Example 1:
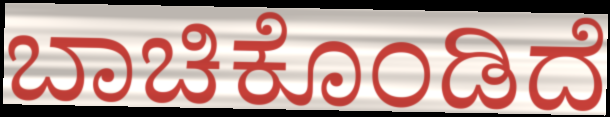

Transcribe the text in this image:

ಬಾಚಿಕೊಂಡಿದೆ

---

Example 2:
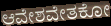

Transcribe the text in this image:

ಆವೇಶವೇತಕೋ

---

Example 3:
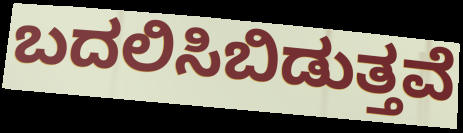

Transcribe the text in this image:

ಬದಲಿಸಿಬಿಡುತ್ತವೆ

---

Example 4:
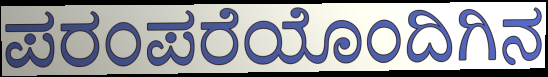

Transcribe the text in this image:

ಪರಂಪರೆಯೊಂದಿಗಿನ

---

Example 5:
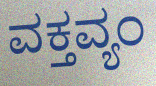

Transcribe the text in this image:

ವಕ್ತವ್ಯಂ